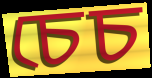
চেচ